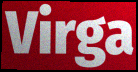
Virga